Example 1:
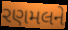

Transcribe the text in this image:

રણમલને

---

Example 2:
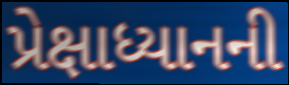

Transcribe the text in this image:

પ્રેક્ષાધ્યાનની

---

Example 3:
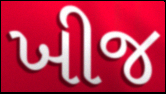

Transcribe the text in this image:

ખીજ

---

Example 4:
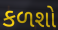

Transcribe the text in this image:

કળશો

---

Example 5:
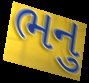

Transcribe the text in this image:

ભનુ